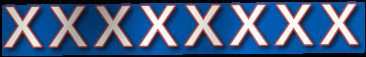
xxxxxxxx